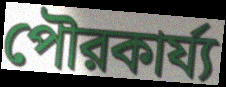
পৌরকার্য্য